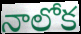
నాలోక